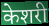
केशरी